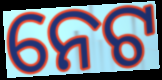
ନେଟ